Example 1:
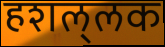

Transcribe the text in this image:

हशल्लक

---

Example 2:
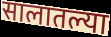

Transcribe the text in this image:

सालातल्या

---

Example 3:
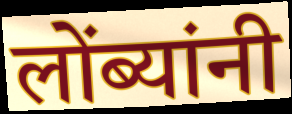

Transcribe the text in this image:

लोंब्यांनी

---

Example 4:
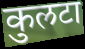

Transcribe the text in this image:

कुलटा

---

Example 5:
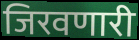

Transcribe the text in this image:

जिरवणारी